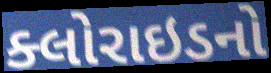
ક્લોરાઇડનો